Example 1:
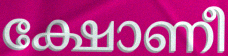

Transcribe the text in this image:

ക്ഷോണീ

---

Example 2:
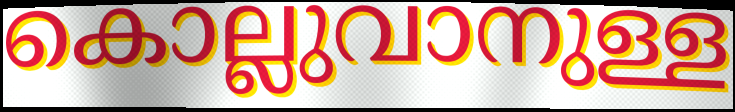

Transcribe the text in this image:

കൊല്ലുവാനുള്ള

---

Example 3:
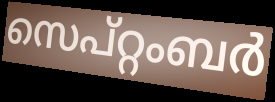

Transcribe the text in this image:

സെപ്റ്റംബർ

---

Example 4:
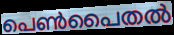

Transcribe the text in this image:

പെൺപൈതൽ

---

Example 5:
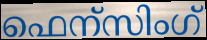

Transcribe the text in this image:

ഫെന്സിംഗ്